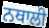
ਨਥਾਲੀ